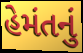
હેમંતનું